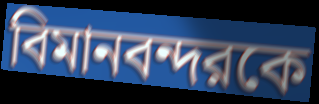
বিমানবন্দরকে